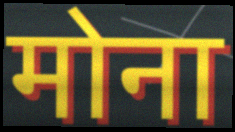
मोना